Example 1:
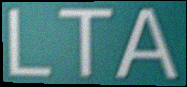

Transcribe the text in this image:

LTA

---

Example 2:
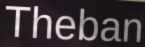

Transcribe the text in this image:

Theban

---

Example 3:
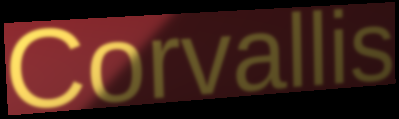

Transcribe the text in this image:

Corvallis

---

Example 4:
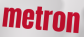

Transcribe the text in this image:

metron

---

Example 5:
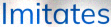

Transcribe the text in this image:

Imitates